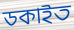
ডকাইত